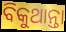
ବିକୁଥାନ୍ତା